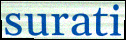
surati